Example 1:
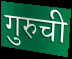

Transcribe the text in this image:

गुरुची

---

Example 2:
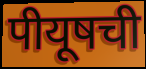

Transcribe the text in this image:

पीयूषची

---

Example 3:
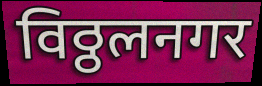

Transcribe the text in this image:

विठ्ठलनगर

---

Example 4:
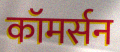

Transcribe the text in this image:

कॉमर्सन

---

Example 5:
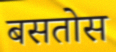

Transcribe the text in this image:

बसतोस